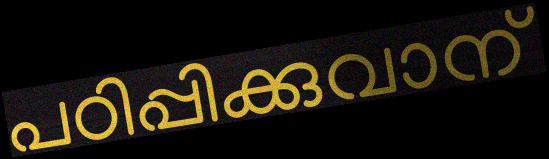
പഠിപ്പിക്കുവാന്